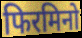
फिरमिनो